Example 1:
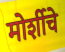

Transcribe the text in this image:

मोर्शीचे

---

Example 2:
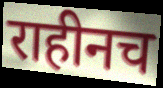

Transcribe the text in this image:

राहीनच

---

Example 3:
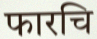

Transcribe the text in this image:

फारचि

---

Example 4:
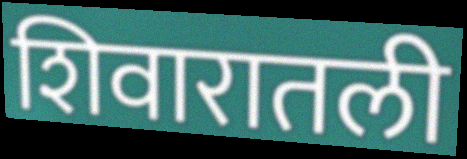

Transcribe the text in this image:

शिवारातली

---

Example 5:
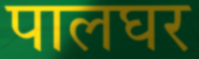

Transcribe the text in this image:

पालघर